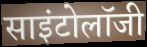
साइंटोलॉजी